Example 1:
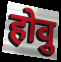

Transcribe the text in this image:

होवु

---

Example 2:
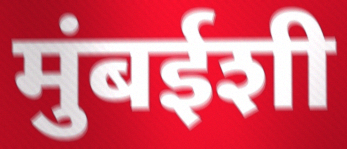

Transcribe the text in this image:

मुंबईशी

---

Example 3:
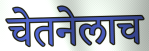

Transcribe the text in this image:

चेतनेलाच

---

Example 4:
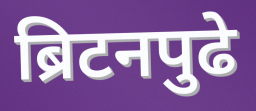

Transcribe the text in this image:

ब्रिटनपुढे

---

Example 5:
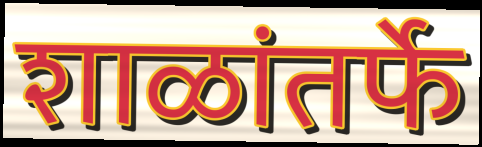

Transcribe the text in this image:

शाळांतर्फे